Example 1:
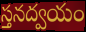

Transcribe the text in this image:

స్తనద్వయం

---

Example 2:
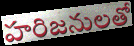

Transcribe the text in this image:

హరిజనులతో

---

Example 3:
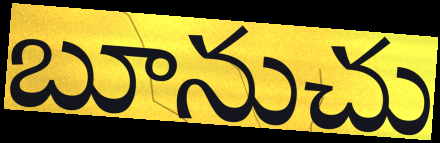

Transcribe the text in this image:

బూనుచు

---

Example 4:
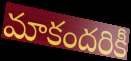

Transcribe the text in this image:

మాకందరికీ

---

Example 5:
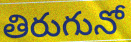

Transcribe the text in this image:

తిరుగునో